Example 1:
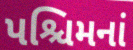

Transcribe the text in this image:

પશ્ચિમનાં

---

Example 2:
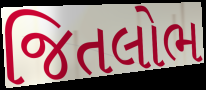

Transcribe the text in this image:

જિતલોભ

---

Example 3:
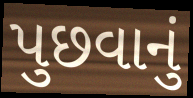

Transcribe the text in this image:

પુછવાનું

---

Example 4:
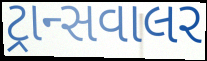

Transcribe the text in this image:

ટ્રાન્સવાલર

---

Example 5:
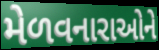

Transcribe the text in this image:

મેળવનારાઓને